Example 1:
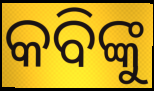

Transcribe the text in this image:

କବିଙ୍କୁ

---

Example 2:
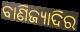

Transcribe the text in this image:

ବାଣିଜ୍ୟାଦିର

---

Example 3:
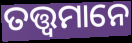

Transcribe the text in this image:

ତତ୍ତ୍ବମାନେ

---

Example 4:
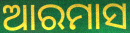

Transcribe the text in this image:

ଆରମାସ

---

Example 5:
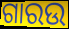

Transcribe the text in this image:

ଗାରଉ